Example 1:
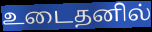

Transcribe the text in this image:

உடைதனில்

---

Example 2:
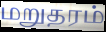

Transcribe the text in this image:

மறுதரம்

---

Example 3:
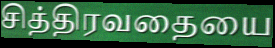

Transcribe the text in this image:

சித்திரவதையை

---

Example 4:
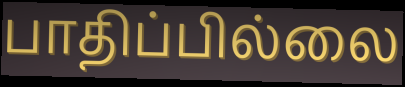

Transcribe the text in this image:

பாதிப்பில்லை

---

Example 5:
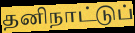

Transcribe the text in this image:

தனிநாட்டுப்